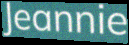
Jeannie